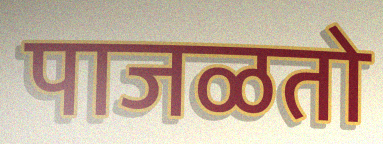
पाजळतो